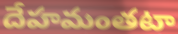
దేహమంతటా